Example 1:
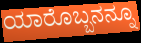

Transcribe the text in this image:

ಯಾರೊಬ್ಬನನ್ನೂ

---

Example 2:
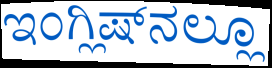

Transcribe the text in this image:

ಇಂಗ್ಲಿಷ್‌ನಲ್ಲೂ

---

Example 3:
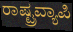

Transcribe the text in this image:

ರಾಷ್ಟ್ರವ್ಯಾಪಿ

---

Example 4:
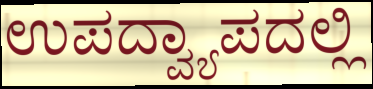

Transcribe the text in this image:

ಉಪದ್ವ್ಯಾಪದಲ್ಲಿ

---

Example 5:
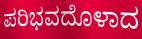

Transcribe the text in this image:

ಪರಿಭವದೊಳಾದ